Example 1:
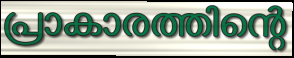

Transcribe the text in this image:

പ്രാകാരത്തിന്റെ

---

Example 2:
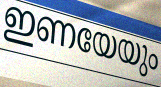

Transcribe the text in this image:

ഇണയേയും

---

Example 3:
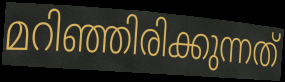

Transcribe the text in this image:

മറിഞ്ഞിരിക്കുന്നത്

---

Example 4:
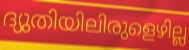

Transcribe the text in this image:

ദ്യുതിയിലിരുളെഴില്ല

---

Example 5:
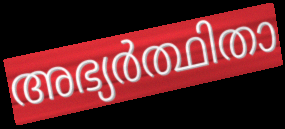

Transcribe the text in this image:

അഭ്യർത്ഥിതാ